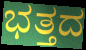
ಭತ್ತದ